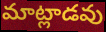
మాట్లాడవు